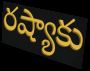
రష్యాకు